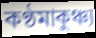
কণ্ঠমাকুঞ্চ্য